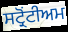
ਸਟ੍ਰੋਂਟੀਅਮ